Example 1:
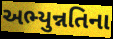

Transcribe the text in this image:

અભ્યુન્નતિના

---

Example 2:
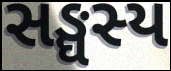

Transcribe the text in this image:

સઙ્ઘસ્ય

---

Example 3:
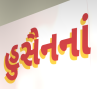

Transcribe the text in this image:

હુસૈનનાં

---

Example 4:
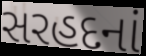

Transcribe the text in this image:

સરહદનાં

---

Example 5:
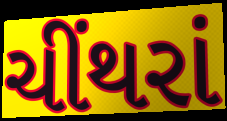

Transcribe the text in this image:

ચીંથરાં